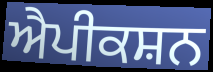
ਐਪੀਕਸ਼ਨ